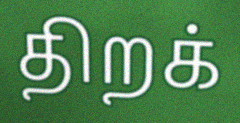
திறக்